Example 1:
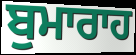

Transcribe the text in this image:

ਬੁਮਾਰਾਹ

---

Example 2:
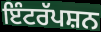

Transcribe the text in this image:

ਇੰਟਰੱਪਸ਼ਨ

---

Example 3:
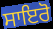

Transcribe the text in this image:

ਸਾਇਰੋ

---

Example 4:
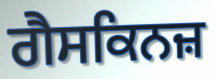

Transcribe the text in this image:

ਗੈਸਕਿਨਜ਼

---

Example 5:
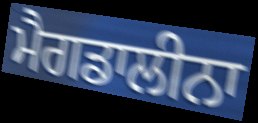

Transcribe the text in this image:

ਮੈਗਡਾਲੀਨਾ